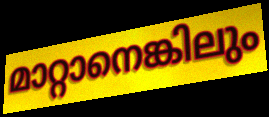
മാറ്റാനെങ്കിലും